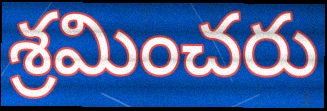
శ్రమించరు